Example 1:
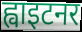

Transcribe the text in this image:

ह्वाइटनर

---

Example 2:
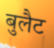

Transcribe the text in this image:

बुलैट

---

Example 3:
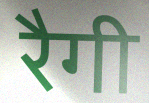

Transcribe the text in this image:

रैगी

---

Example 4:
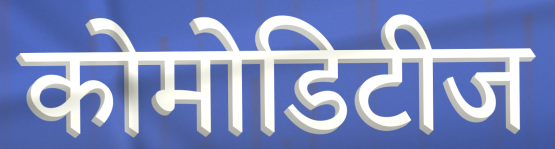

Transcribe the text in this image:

कोमोडिटीज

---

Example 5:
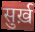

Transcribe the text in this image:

सुर्ख़